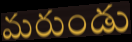
మరుండు